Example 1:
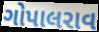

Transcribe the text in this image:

ગોપાલરાવ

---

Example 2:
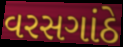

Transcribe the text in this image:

વરસગાંઠે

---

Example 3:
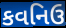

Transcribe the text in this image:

કવનિઉ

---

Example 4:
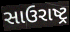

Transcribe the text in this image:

સાઉરાષ્ટ્ર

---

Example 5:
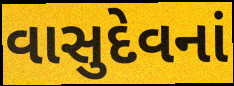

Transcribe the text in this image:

વાસુદેવનાં